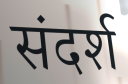
संदर्श